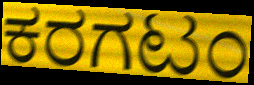
ಕರಗಟಂ